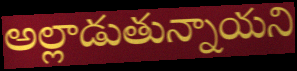
అల్లాడుతున్నాయని